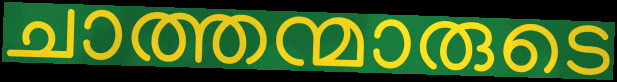
ചാത്തന്മാരുടെ